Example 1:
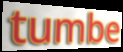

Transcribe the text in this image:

tumbe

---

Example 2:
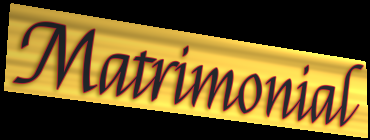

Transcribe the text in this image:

Matrimonial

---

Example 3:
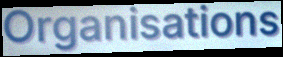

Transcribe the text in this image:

Organisations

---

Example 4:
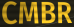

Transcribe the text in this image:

CMBR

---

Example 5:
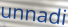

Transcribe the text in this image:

unnadi